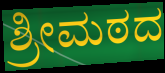
ಶ್ರೀಮಠದ